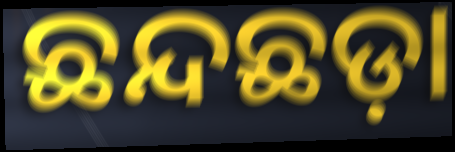
ଛନ୍ଦଛଡ଼ା